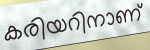
കരിയറിനാണ്